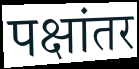
पक्षांतर